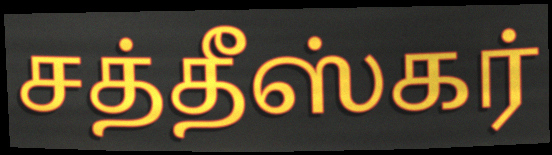
சத்தீஸ்கர்